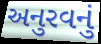
અનુરવનું